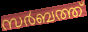
സർബത്ത്